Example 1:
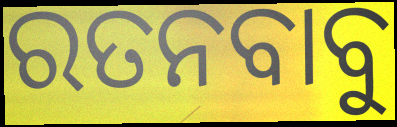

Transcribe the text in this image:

ରତନବାବୁ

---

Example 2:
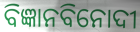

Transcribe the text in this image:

ବିଜ୍ଞାନବିନୋଦୀ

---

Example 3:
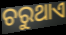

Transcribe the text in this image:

ଚରୁଥାଏ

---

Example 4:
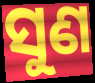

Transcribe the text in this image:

ସୁଣ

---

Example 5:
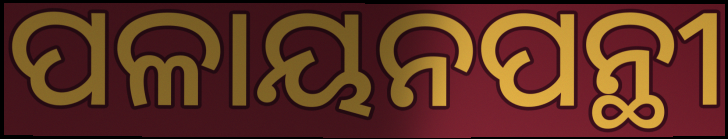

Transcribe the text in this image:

ପଳାୟନପନ୍ଥୀ